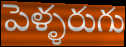
పెళ్ళరుగు